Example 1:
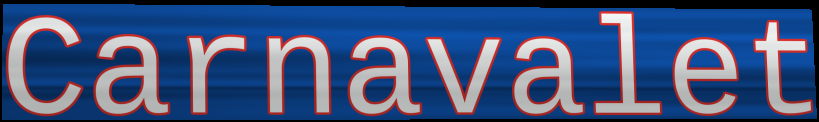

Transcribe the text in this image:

Carnavalet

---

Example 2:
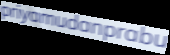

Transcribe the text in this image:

priyamudanprabu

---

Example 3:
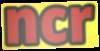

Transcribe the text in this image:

ncr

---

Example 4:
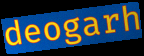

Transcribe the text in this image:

deogarh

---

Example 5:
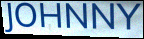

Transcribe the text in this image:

JOHNNY